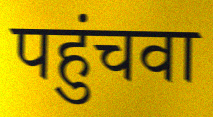
पहुंचवा